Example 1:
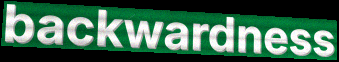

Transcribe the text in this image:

backwardness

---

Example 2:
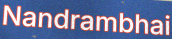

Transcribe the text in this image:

Nandrambhai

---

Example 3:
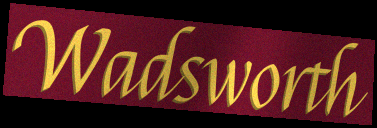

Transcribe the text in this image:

Wadsworth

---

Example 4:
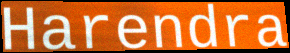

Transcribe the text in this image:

Harendra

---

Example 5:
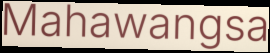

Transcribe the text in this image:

Mahawangsa